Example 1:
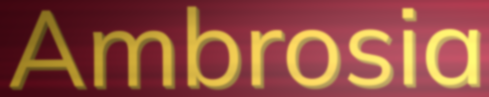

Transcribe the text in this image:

Ambrosia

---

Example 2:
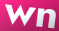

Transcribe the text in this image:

wn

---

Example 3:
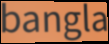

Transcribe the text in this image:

bangla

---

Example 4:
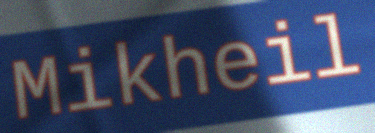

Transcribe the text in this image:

Mikheil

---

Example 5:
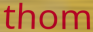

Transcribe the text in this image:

thom